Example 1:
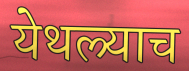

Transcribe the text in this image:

येथल्याच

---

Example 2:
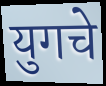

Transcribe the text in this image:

युगचे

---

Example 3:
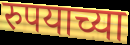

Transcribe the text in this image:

रुपयाच्या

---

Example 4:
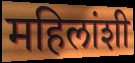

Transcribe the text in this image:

महिलांशी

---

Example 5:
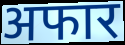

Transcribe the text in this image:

अफार